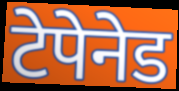
टेपेनेड